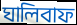
ঘালিবাফ